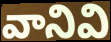
వానివి